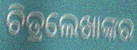
ଚିତ୍ରଲେଖାଙ୍କର